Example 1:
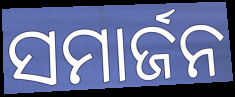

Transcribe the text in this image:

ସମାର୍ଜନ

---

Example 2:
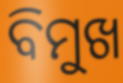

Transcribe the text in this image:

ବିମୁଖ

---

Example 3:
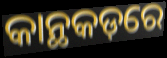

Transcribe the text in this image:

କାନ୍ଥକଡ଼ରେ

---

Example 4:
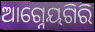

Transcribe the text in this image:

ଆଗ୍ନେୟଗିରି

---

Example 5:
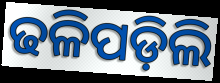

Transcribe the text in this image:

ଢଳିପଡ଼ିଲି